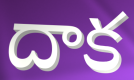
దాక